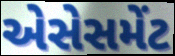
એસેસમેંટ